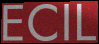
ECIL